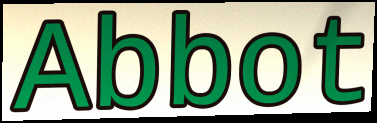
Abbot